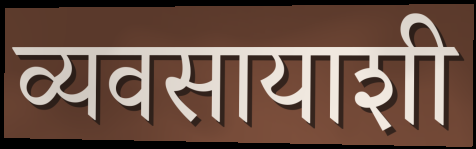
व्यवसायाशी